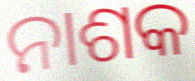
ନାଶକ